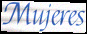
Mujeres